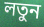
লতুন